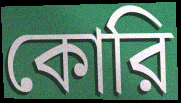
কোরি